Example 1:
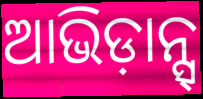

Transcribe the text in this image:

ଆଭିଡ଼ାନ୍ସ୍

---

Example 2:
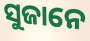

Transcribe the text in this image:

ସୁଜାନେ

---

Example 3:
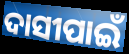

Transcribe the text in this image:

ଦାସୀପାଇଁ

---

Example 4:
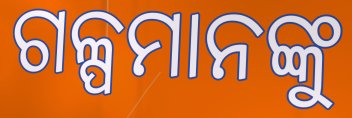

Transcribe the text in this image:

ଗଳ୍ପମାନଙ୍କୁ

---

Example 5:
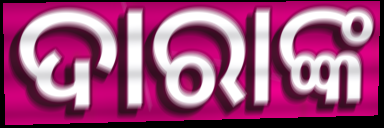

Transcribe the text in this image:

ଦାରାଙ୍କ